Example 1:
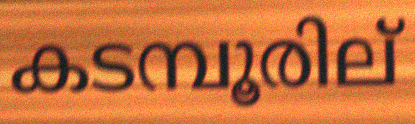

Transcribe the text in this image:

കടമ്പൂരില്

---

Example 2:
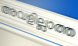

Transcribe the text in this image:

അവളില്ലാത്ത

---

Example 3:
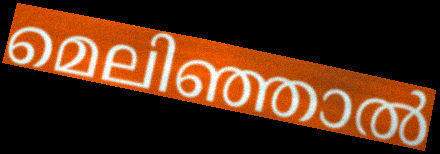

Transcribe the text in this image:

മെലിഞ്ഞാൽ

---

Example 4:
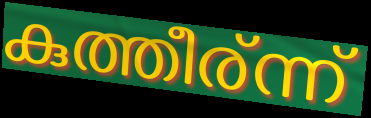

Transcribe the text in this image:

കുത്തീര്ന്ന്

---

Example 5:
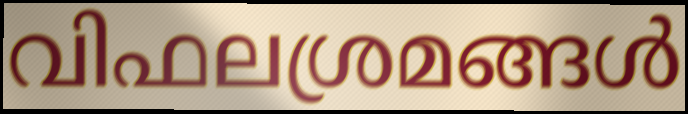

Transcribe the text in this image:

വിഫലശ്രമങ്ങൾ